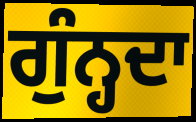
ਗੁੰਨ੍ਹਦਾ